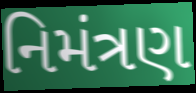
નિમંત્રણ